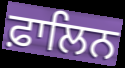
ਫ਼ਾਲਿਨ